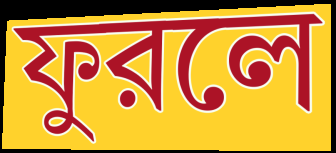
ফুরলে